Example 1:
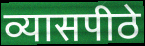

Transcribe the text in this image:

व्यासपीठे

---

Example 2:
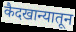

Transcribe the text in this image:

कैदखान्यातून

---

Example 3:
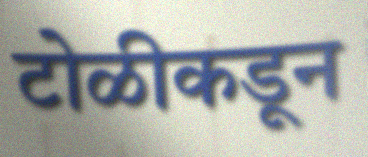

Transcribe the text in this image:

टोळीकडून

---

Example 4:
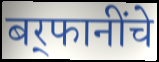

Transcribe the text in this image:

बर्फानींचे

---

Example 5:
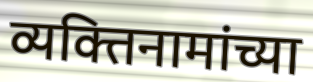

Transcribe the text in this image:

व्यक्तिनामांच्या